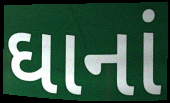
ઘાનાં